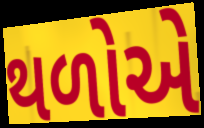
થળોએ